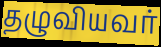
தழுவியவர்